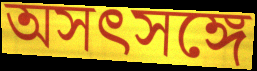
অসৎসঙ্গে